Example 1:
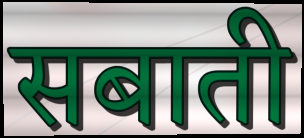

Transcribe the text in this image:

सबाती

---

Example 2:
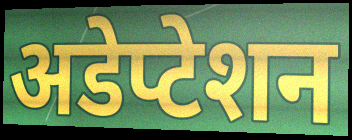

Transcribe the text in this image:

अडेप्टेशन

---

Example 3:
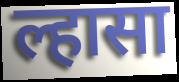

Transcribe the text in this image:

ल्हासा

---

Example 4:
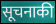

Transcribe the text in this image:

सूचनाकी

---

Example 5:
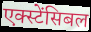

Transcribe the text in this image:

एक्स्टेंसिबल